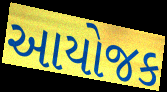
આયોજક